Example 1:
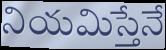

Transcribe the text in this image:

నియమిస్తేనే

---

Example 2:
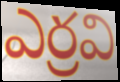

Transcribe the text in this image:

ఎర్రవి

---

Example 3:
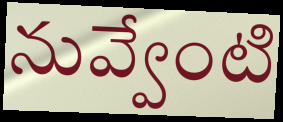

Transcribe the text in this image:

నువ్వేంటి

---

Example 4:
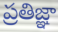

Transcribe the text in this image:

ప్రతిజ్ఞా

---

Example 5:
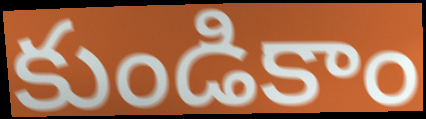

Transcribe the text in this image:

కుండికాం